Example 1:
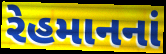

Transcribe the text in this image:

રેહમાનનાં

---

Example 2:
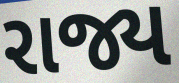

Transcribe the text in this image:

રાજ્ય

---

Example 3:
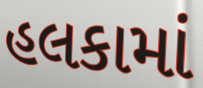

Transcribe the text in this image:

હલકામાં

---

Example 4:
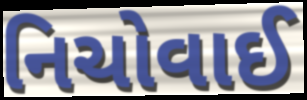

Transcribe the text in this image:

નિચોવાઈ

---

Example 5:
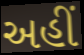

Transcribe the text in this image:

અહીં